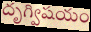
దృగ్విషయం